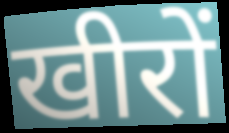
खीरों